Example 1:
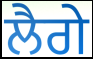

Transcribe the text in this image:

ਲੈਗੇ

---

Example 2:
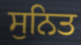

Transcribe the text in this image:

ਸੁਨਿਤ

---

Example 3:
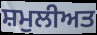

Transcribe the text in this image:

ਸ਼ਮੁਲੀਅਤ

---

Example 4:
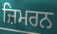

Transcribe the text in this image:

ਜ਼ਿਮਰਨ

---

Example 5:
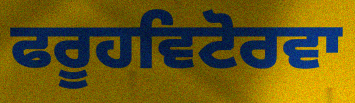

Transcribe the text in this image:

ਫਰੂਹਵਿਟੋਰਵਾ